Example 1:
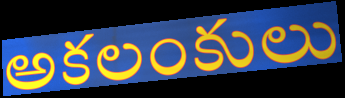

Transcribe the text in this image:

అకలంకులు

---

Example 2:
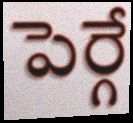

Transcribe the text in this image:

పెర్గే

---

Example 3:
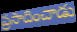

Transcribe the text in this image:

ప్రసాదించాడు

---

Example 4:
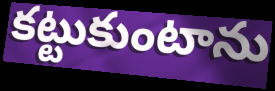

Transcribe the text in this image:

కట్టుకుంటాను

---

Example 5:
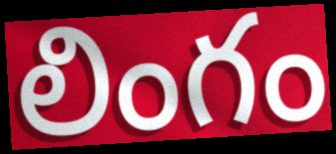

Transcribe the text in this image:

లింగం